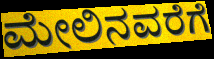
ಮೇಲಿನವರೆಗೆ